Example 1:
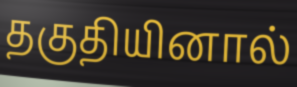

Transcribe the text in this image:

தகுதியினால்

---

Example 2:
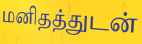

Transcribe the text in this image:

மனிதத்துடன்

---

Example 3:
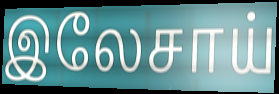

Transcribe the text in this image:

இலேசாய்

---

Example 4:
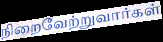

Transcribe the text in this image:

நிறைவேற்றுவார்கள்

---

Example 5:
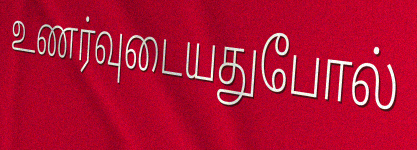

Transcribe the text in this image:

உணர்வுடையதுபோல்